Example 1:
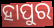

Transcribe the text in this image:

ହାପୁର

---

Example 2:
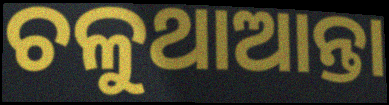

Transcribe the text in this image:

ଚଳୁଥାଆନ୍ତା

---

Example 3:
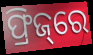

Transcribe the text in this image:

ଫ୍ରିଜ୍‌ରେ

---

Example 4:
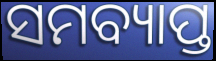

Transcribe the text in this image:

ସମବ୍ୟାପ୍ତ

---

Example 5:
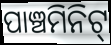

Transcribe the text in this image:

ପାଞ୍ଚମିନିଟ୍